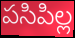
పసిపిల్ల